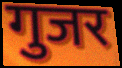
गुजर